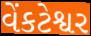
વેંકટેશ્વર